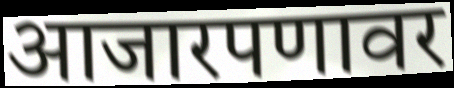
आजारपणावर